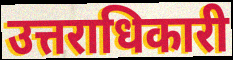
उत्तराधिकारी